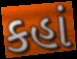
કહાં